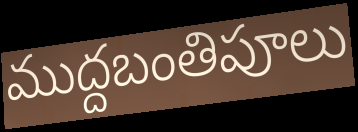
ముద్దబంతిపూలు